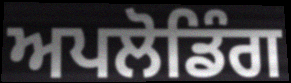
ਅਪਲੋਡਿੰਗ